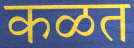
कळत